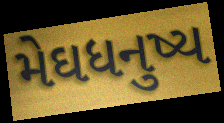
મેઘધનુષ્ય